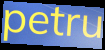
petru